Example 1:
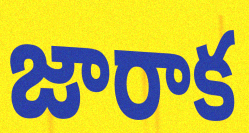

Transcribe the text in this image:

జారాక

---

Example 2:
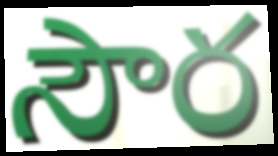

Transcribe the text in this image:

సౌర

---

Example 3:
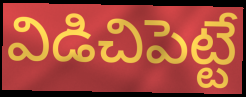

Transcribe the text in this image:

విడిచిపెట్టే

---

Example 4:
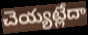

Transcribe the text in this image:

చెయ్యట్లేదా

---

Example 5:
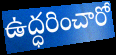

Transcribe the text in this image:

ఉద్ధరించారో